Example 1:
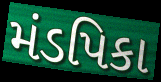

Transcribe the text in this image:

મંડપિકા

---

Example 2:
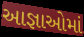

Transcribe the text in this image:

આજ્ઞાઓમાં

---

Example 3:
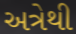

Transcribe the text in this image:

અત્રેથી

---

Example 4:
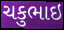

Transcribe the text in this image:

ચકુભાઇ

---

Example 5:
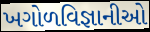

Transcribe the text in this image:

ખગોળવિજ્ઞાનીઓ